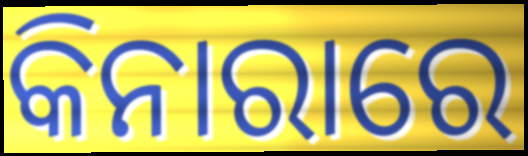
କିନାରାରେ